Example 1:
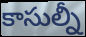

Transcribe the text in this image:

కాసుల్నీ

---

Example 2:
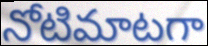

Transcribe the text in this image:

నోటిమాటగా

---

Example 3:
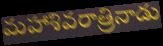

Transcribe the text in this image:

మహాశివరాత్రినాడు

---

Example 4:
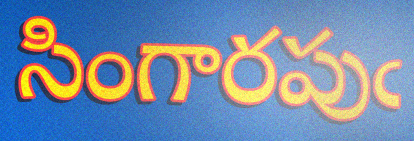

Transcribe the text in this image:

సింగారపుఁ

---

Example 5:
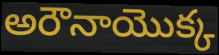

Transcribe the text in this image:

అరౌనాయొక్క